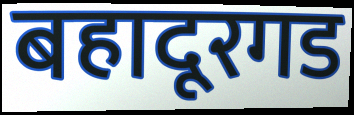
बहादूरगड